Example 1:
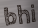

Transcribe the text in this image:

bhi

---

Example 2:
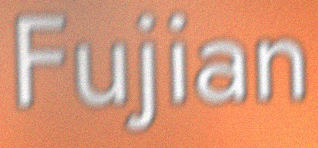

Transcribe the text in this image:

Fujian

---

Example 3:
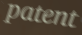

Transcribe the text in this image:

patent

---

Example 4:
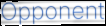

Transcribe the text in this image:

Opponent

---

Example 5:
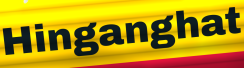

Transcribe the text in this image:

Hinganghat